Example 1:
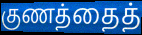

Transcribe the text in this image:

குணத்தைத்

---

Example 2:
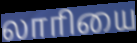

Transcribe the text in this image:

லாரியை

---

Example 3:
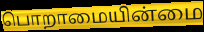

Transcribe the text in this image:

பொறாமையின்மை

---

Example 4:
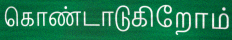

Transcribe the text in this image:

கொண்டாடுகிறோம்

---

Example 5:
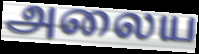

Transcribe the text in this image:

அலைய